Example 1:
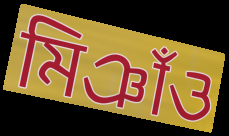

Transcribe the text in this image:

মিঞাঁও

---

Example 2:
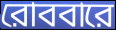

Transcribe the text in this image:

রোববারে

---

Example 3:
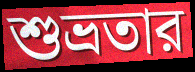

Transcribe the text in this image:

শুভ্রতার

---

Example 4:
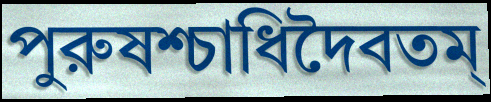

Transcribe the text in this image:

পুরুষশ্চাধিদৈবতম্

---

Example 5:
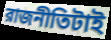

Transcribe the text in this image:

রাজনীতিটাই